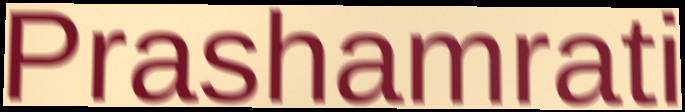
Prashamrati